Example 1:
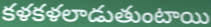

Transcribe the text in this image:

కళకళలాడుతుంటాయి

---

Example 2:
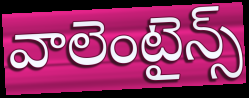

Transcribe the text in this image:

వాలెంటైన్స్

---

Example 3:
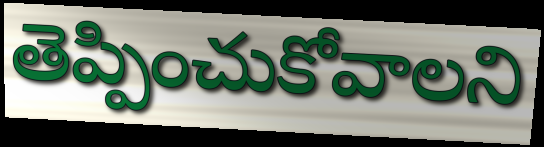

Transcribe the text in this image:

తెప్పించుకోవాలని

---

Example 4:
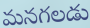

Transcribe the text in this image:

మనగలడు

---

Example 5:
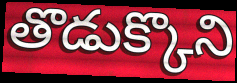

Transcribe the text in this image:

తొడుక్కొని